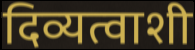
दिव्यत्वाशी